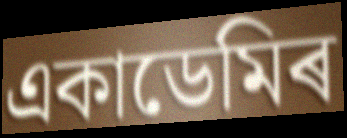
একাডেমিৰ